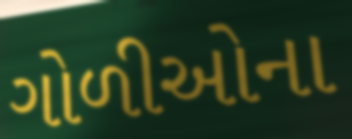
ગોળીઓના